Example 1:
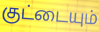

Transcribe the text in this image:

குட்டையும்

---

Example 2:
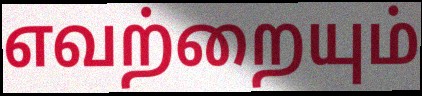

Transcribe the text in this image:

எவற்றையும்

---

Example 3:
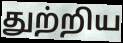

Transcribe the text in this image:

துற்றிய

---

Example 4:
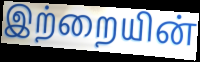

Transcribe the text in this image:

இற்றையின்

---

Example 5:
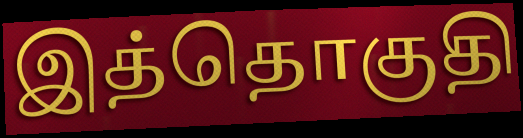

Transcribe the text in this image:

இத்தொகுதி